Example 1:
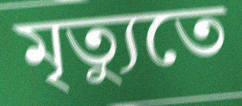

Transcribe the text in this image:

মৃত্যুতে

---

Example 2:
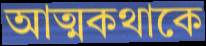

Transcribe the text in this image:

আত্মকথাকে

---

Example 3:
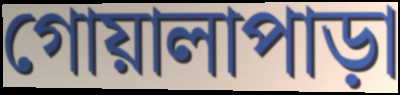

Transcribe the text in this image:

গোয়ালাপাড়া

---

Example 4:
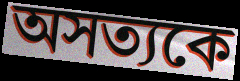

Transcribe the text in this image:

অসত্যকে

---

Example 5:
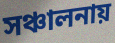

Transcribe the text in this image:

সঞ্চালনায়